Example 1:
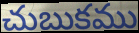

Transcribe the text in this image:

చుబుకము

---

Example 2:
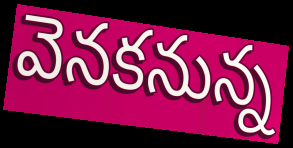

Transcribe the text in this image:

వెనకనున్న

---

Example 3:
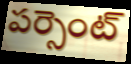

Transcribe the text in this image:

పర్సెంట్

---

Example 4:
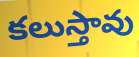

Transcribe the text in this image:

కలుస్తావు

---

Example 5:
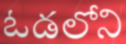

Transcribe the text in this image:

ఓడలోని